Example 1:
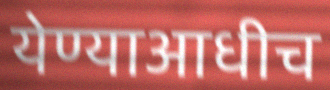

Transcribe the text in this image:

येण्याआधीच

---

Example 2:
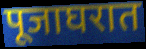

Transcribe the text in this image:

पूजाघरात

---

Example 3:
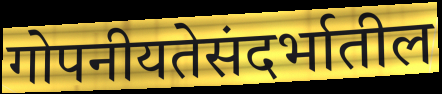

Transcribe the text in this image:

गोपनीयतेसंदर्भातील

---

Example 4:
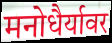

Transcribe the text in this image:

मनोधैर्यावर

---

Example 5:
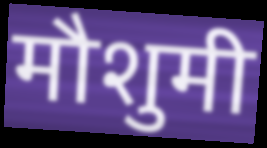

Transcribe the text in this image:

मौशुमी